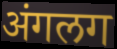
अंगलग